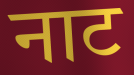
नाट